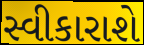
સ્વીકારાશે